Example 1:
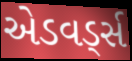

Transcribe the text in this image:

એડવર્ડ્સ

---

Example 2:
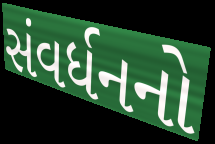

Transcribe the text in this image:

સંવર્ધનનો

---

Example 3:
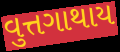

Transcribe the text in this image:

વુત્તગાથાય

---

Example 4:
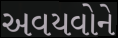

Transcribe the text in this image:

અવયવોને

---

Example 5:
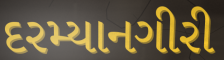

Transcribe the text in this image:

દરમ્યાનગીરી